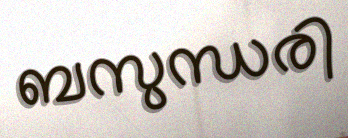
ബസുന്ധരി